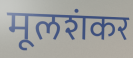
मूलशंकर